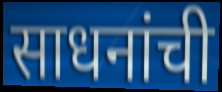
साधनांची